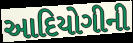
આદિયોગીની